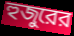
হুজুরের